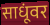
साधूंवर